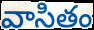
వాసితం